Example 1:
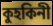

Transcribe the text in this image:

কুহকিনী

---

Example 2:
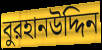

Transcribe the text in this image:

বুরহানউদ্দিন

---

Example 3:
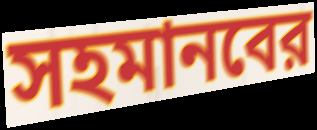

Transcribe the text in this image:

সহমানবের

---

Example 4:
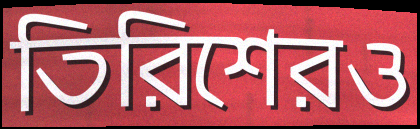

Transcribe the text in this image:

তিরিশেরও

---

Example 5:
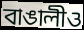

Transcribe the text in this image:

বাঙালীও